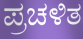
ಪ್ರಚಳಿತ